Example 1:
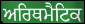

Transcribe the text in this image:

ਅਰਿਥਮੈਟਿਕ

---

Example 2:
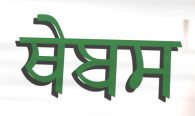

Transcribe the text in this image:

ਥੇਬਸ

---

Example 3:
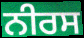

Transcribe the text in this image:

ਨੀਰਸ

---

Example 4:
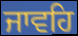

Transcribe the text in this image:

ਜਾਵਹਿ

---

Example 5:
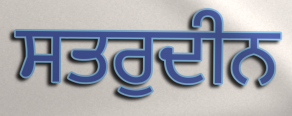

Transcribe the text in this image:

ਸਤਰੁਦੀਨ